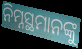
ନିମ୍ନସ୍ଥମାନଙ୍କୁ